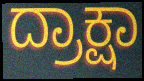
ದ್ರಾಕ್ಷಾ